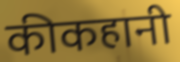
कीकहानी